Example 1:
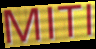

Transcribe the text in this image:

MITI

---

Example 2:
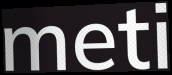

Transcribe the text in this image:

meti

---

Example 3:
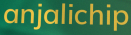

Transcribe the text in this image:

anjalichip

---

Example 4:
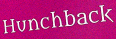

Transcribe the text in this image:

Hunchback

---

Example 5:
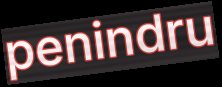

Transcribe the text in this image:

penindru